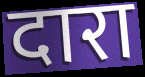
दारा